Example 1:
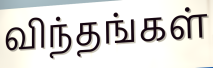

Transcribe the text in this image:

விந்தங்கள்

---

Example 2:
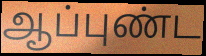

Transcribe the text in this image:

ஆப்புண்ட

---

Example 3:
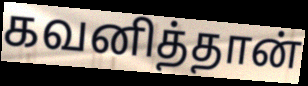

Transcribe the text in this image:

கவனித்தான்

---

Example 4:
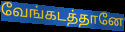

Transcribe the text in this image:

வேங்கடத்தானே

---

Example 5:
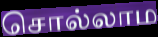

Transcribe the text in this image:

சொல்லாம